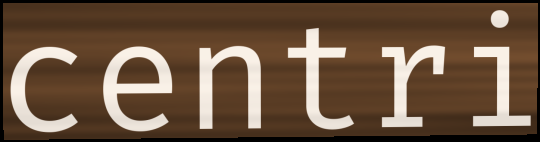
centri